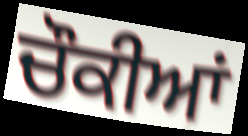
ਚੌਕੀਆਂ